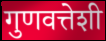
गुणवत्तेशी